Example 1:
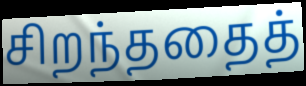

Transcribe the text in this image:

சிறந்ததைத்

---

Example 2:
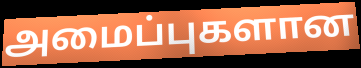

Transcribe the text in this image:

அமைப்புகளான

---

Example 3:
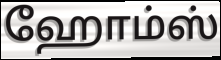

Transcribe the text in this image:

ஹோம்ஸ்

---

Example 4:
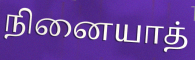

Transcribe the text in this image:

நினையாத்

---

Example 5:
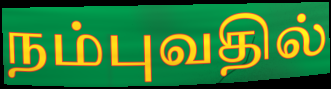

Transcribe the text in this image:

நம்புவதில்